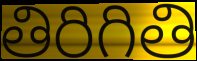
తిరిగితి